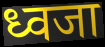
ध्वजा